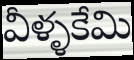
వీళ్ళకేమి